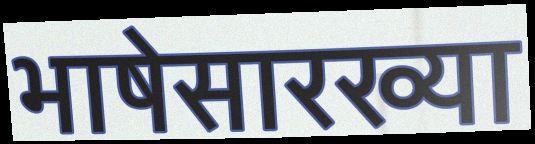
भाषेसारख्या